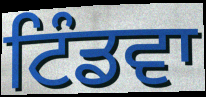
ਟਿੰਡਵਾ